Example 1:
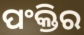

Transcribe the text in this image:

ପଂକ୍ତିର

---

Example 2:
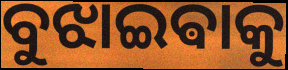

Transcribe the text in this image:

ବୁଝାଇଵାକୁ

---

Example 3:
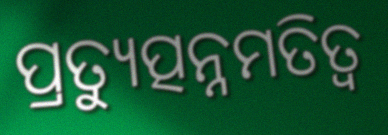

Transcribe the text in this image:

ପ୍ରତ୍ୟୁତ୍ପନ୍ନମତିତ୍ୱ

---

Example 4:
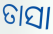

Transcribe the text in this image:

ତାସା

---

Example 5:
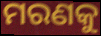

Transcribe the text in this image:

ମରଣକୁ